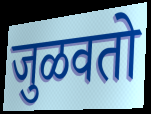
जुळवतो